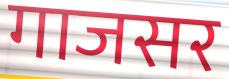
गाजसर